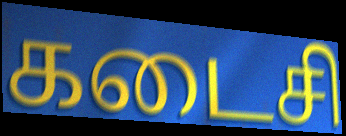
கடைசி